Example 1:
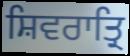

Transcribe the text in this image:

ਸ਼ਿਵਰਾਤ੍ਰਿ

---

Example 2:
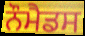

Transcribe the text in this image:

ਨੌਮੈਡਸ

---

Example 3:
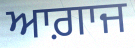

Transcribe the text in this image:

ਆਗ਼ਾਜ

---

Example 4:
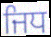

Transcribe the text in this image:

ਜਿਧ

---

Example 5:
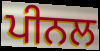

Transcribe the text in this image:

ਪੀਨਲ